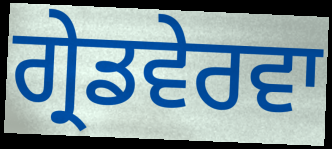
ਗ੍ਰੇਡਵੇਰਵਾ